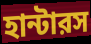
হান্টারস